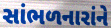
સાંભળનારાંને